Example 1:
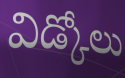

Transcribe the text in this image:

విడ్కోలు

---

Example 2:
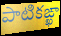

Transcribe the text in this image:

పాటికఙ్ఖా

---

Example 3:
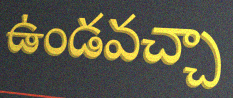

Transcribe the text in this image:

ఉండవచ్చా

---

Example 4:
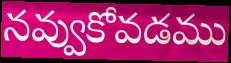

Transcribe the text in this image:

నవ్వుకోవడము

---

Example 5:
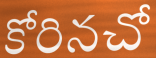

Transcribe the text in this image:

కోరినచో